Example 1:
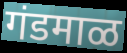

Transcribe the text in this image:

गंडमाळ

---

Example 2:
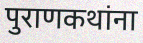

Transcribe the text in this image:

पुराणकथांना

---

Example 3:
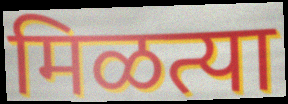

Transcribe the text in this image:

मिळत्या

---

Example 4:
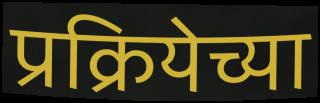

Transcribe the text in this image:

प्रक्रियेच्या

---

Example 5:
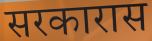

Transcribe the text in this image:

सरकारास